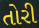
તોરી